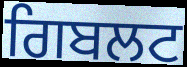
ਗਿਬਲਟ